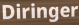
Diringer